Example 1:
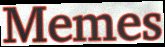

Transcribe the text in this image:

Memes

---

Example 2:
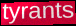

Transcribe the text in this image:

tyrants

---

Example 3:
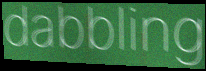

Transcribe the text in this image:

dabbling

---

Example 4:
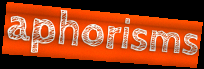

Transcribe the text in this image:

aphorisms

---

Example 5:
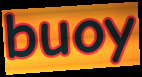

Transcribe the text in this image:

buoy